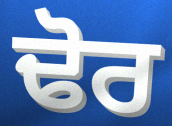
ਢੋਰ